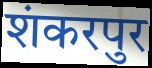
शंकरपुर